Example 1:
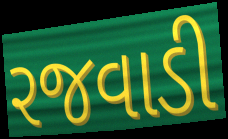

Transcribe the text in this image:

રજવાડી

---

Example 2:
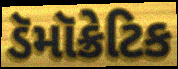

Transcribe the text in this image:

ડૅમૉક્રેટિક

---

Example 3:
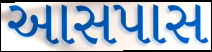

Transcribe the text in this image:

આસપાસ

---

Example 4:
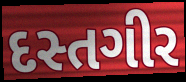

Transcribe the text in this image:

દસ્તગીર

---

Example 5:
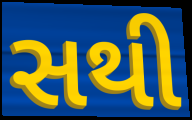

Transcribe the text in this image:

સથી